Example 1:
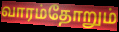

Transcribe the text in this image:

வாரம்தோறும்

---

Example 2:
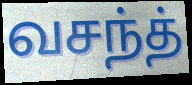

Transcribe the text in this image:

வசந்த்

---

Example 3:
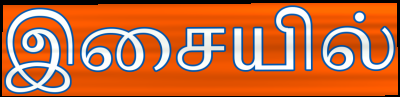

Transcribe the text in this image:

இசையில்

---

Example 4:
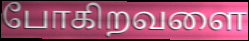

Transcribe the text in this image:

போகிறவளை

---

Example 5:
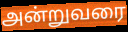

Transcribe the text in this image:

அன்றுவரை